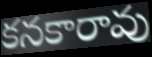
కనకారావు